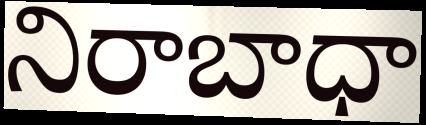
నిరాబాధా